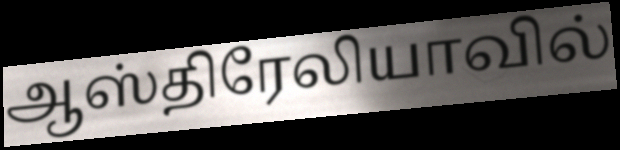
ஆஸ்திரேலியாவில்